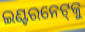
ଇଣ୍ଟରନେଟ୍‌କୁ